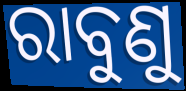
ରାବୁଣୁ